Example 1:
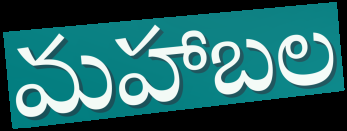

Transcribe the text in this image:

మహాబల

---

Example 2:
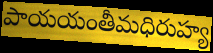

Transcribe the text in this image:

పాయయంతీమధిరుహ్య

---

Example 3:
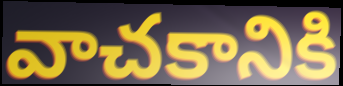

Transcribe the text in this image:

వాచకానికి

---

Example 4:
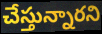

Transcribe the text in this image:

చేస్తున్నారని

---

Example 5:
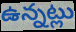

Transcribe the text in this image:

ఉన్నట్లు